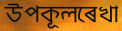
উপকূলৰেখা